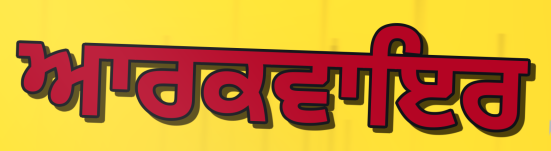
ਆਰਕਵਾਇਰ